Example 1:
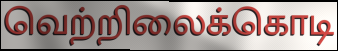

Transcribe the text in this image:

வெற்றிலைக்கொடி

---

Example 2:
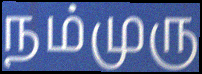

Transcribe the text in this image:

நம்முரு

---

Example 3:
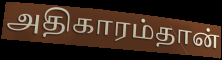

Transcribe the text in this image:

அதிகாரம்தான்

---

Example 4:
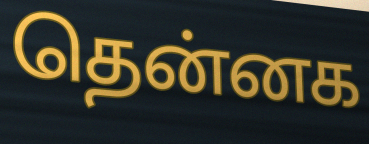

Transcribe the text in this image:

தென்னக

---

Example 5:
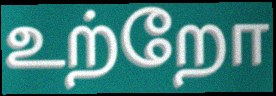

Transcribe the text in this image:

உற்றோ